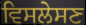
ਵਿਸਲੇਸਣ